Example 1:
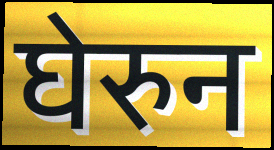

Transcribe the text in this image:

घेरुन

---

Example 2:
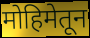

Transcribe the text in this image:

मोहिमेतून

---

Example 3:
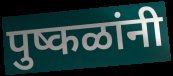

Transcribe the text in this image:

पुष्कळांनी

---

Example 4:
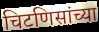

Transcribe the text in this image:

चिटणिसांच्या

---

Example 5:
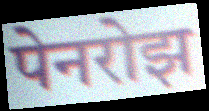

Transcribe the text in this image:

पेनरोझ